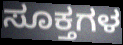
ಸೂಕ್ತಗಳ